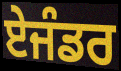
ਏਜੰਡਰ